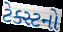
ટેક્સ્ટનો